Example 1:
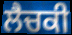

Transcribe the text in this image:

ਲੈਚਕੀ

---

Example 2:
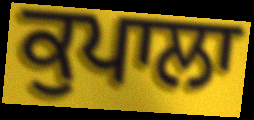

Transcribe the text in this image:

ਕੁਪਾਲਾ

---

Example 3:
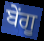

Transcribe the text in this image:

ਬੇਂਗੂ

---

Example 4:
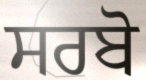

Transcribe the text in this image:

ਸਰਬੋ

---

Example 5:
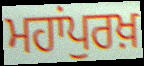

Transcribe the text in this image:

ਮਹਾਂਪੁਰਖ਼